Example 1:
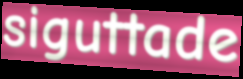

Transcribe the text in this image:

siguttade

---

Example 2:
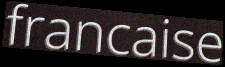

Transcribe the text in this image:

francaise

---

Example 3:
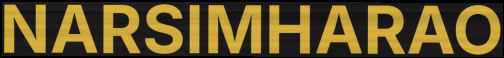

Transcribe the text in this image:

NARSIMHARAO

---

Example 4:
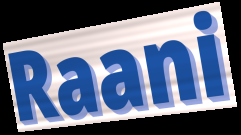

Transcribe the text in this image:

Raani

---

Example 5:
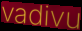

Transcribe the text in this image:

vadivu